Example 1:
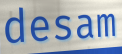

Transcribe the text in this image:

desam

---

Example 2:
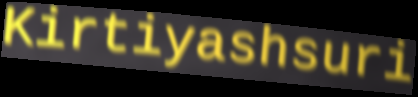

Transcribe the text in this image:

Kirtiyashsuri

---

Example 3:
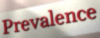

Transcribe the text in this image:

Prevalence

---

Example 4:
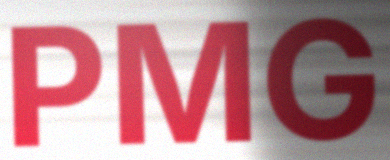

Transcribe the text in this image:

PMG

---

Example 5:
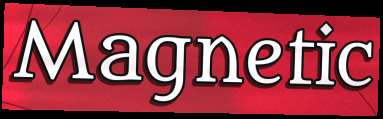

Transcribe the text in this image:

Magnetic